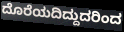
ದೊರೆಯದಿದ್ದುದರಿಂದ